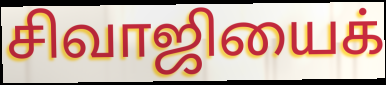
சிவாஜியைக்